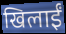
खिलाईं